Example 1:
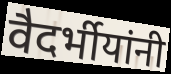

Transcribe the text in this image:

वैदर्भीयांनी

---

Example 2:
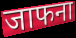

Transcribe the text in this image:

जाफना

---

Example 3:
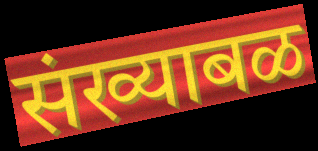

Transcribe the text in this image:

संख्याबळ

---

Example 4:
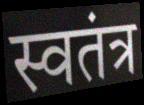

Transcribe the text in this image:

स्‍वतंत्र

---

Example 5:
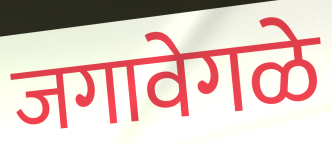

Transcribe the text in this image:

जगावेगळे